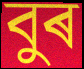
বুৰ